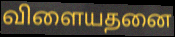
விளையதனை